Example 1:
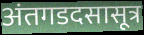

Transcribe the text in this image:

अंतगडदसासूत्र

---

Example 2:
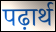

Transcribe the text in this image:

पढ़ार्थ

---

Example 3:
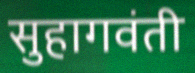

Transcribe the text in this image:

सुहागवंती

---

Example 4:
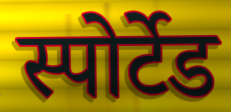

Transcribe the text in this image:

स्पोर्टेड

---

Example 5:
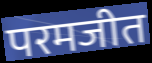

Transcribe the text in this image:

परमजीत